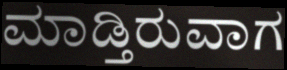
ಮಾಡ್ತಿರುವಾಗ